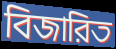
বিজারিত